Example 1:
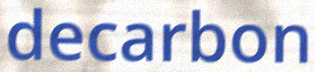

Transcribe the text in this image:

decarbon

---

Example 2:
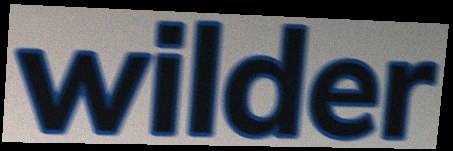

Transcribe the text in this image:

wilder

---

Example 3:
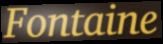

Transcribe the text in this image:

Fontaine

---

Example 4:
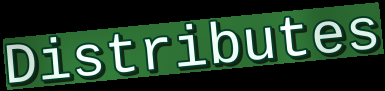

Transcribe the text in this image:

Distributes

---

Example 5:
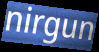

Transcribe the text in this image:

nirgun